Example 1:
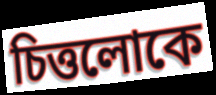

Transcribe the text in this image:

চিত্তলোকে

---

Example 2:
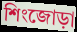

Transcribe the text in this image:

শিংজোড়া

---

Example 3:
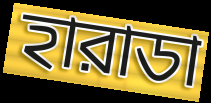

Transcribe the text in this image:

হারাডা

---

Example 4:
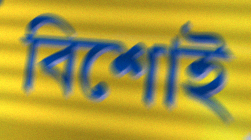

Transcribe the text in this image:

বিশোই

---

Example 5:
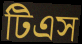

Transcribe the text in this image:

টিএস